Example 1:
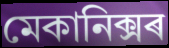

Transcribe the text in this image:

মেকানিক্সৰ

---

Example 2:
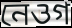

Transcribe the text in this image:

নেওগ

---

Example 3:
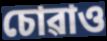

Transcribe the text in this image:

চোৱাও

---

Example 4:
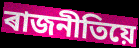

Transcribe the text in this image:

ৰাজনীতিয়ে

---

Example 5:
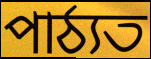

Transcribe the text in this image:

পাঠ্যত